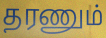
தரணும்